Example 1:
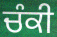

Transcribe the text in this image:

ਚੰਕੀ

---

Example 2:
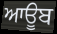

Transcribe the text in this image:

ਆਊਬ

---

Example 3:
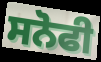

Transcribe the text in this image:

ਸਨੋਫੀ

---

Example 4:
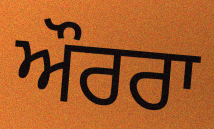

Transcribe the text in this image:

ਔਰਰਾ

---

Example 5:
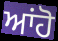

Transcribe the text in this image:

ਆਂਹੋ